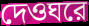
দেওঘরে